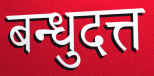
बन्धुदत्त